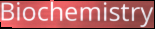
Biochemistry